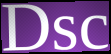
Dsc